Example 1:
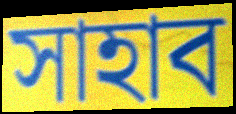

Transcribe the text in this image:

সাহাব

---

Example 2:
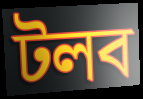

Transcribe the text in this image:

টলব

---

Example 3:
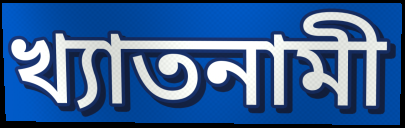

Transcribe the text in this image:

খ্যাতনামী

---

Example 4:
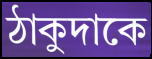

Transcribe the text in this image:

ঠাকুদাকে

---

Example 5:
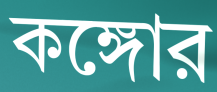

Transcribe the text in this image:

কঙ্গোর